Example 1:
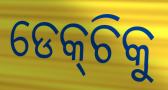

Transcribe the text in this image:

ଡେକ୍‌ଚିକୁ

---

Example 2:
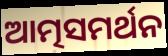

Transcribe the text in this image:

ଆତ୍ମସମର୍ଥନ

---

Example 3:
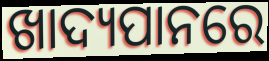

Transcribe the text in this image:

ଖାଦ୍ୟପାନରେ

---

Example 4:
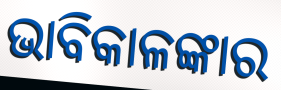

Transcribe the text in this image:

ଭାବିକାଳଙ୍କାର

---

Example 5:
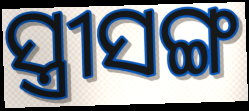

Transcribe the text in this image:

ସ୍ତ୍ରୀସଙ୍ଗ